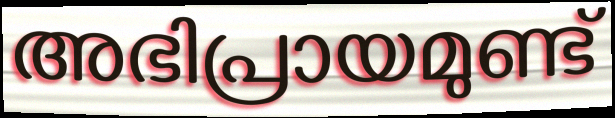
അഭിപ്രായമുണ്ട്